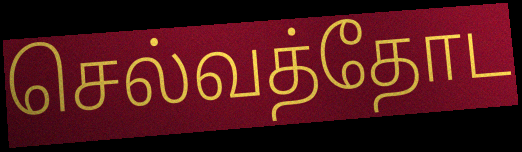
செல்வத்தோட